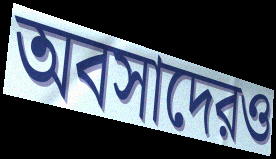
অবসাদেরও